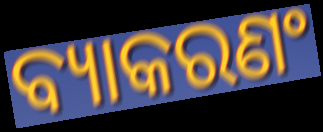
ବ୍ୟାକରଣଂ